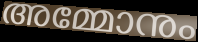
അമ്മോനും